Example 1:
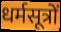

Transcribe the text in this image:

धर्मसूत्रों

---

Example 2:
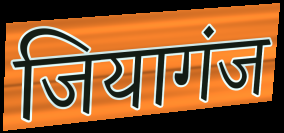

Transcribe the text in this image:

जियागंज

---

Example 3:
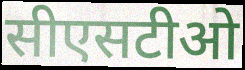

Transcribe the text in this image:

सीएसटीओ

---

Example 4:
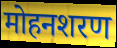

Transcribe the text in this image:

मोहनशरण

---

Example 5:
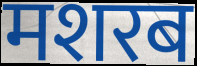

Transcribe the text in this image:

मशरब